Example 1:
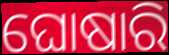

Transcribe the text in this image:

ଘୋଷାରି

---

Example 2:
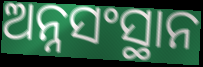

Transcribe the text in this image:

ଅନ୍ନସଂସ୍ଥାନ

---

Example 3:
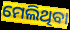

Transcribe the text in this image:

ମେଲିଥିବା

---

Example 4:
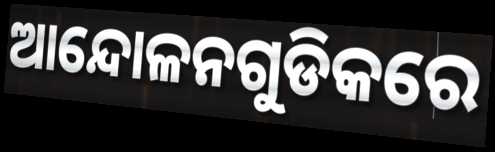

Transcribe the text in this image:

ଆନ୍ଦୋଳନଗୁଡିକରେ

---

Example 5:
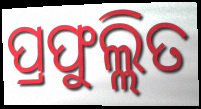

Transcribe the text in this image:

ପ୍ରଫୁଲ୍ଲିତ